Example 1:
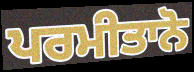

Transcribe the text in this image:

ਪਰਮੀਤਾਨੋ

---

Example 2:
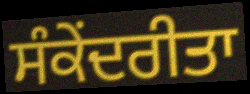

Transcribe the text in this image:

ਸੰਕੇਂਦਰੀਤਾ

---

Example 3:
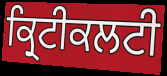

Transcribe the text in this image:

ਕ੍ਰਿਟੀਕਲਟੀ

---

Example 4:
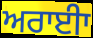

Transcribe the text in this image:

ਅਰਾਈਾ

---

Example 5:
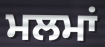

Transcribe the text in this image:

ਮਲਮਾਂ